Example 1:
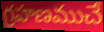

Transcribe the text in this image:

గ్రహణముచే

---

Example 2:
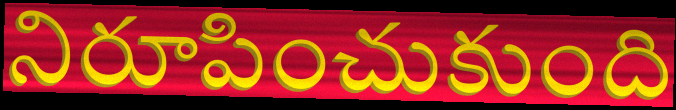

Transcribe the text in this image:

నిరూపించుకుంది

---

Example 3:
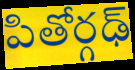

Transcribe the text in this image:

పితోర్గఢ్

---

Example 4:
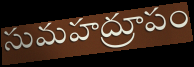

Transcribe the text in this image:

సుమహద్రూపం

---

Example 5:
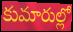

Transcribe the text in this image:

కుమారుల్లో